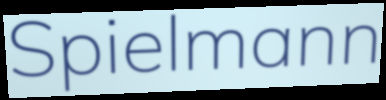
Spielmann